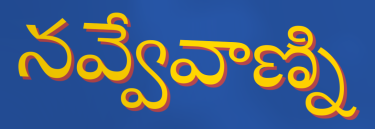
నవ్వేవాణ్ని